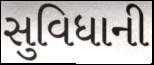
સુવિધાની